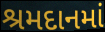
શ્રમદાનમાં